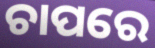
ଚାପରେ